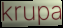
krupa